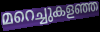
മറെച്ചുകളഞ്ഞ